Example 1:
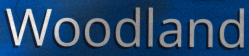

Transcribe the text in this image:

Woodland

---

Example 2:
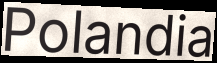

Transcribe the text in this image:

Polandia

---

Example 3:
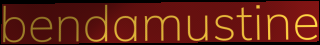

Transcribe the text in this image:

bendamustine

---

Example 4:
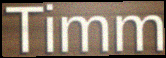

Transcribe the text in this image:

Timm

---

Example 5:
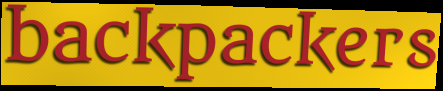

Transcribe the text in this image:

backpackers